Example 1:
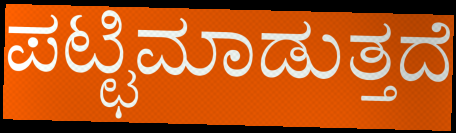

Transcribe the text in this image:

ಪಟ್ಟಿಮಾಡುತ್ತದೆ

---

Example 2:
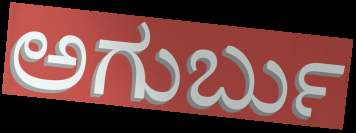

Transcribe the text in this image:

ಅಗುರ್ಬು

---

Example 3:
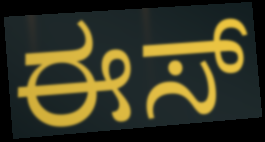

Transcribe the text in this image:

ಈಸ್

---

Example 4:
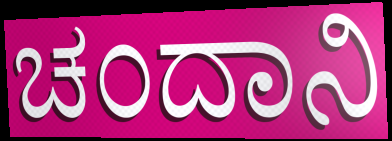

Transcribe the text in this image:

ಚಂದಾನಿ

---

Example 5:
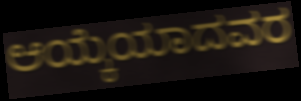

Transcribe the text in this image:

ಆಯ್ಕೆಯಾದವರ